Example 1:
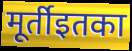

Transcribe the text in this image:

मूर्तीइतका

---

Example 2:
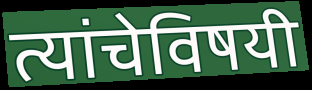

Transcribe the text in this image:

त्यांचेविषयी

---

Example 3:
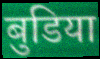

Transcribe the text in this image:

बुडिया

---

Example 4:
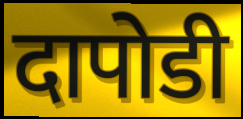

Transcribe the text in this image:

दापोडी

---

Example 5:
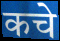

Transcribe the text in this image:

कचे